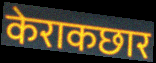
केराकछार